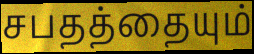
சபதத்தையும்